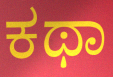
ಕಥಾ